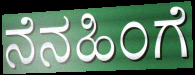
ನೆನಹಿಂಗೆ